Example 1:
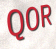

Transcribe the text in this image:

QOR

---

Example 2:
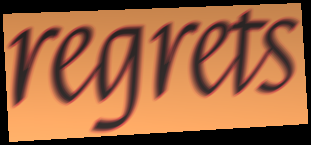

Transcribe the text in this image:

regrets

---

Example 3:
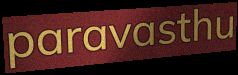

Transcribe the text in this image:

paravasthu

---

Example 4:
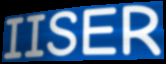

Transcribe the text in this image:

IISER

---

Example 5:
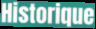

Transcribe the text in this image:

Historique